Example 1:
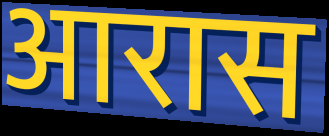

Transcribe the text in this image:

आरास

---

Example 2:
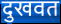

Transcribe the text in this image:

दुखवत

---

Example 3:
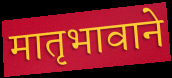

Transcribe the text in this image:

मातृभावाने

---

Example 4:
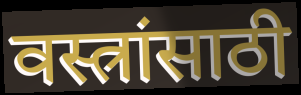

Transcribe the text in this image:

वस्त्रांसाठी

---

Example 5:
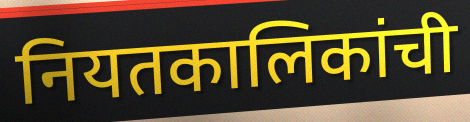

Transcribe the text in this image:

नियतकालिकांची